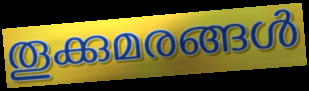
തൂക്കുമരങ്ങൾ